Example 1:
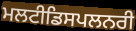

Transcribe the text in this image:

ਮਲਟੀਡਿਸਪਲਨਰੀ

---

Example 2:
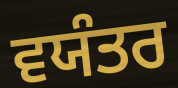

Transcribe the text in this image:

ਵਯੰਤਰ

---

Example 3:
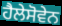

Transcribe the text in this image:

ਹੈਲੇਸੋਵੇਨ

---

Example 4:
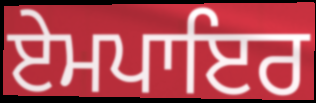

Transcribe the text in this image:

ਏਮਪਾਇਰ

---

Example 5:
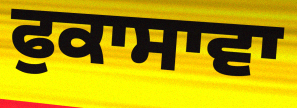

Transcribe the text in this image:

ਫੁਕਾਸਾਵਾ